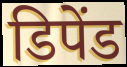
डिपेंड